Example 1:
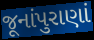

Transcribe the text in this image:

જૂનાંપુરાણાં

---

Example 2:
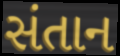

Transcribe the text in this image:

સંતાન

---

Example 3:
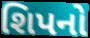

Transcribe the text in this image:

શિપનો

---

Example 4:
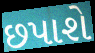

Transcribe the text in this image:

છપાશે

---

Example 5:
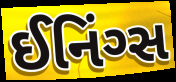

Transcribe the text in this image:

ઈનિંગ્સ